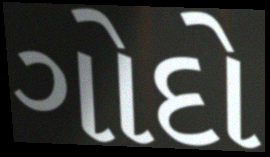
ગોદો